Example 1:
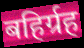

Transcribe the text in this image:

बहिर्ग्रह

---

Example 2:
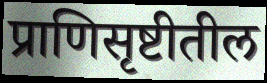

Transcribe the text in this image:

प्राणिसृष्टीतील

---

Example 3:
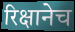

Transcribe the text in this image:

रिक्षानेच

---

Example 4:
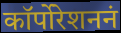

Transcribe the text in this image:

कॉर्पोरेशननं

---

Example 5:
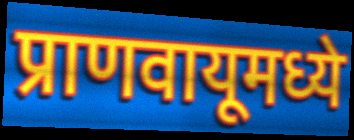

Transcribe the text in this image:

प्राणवायूमध्ये